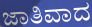
ಜಾತಿವಾದ